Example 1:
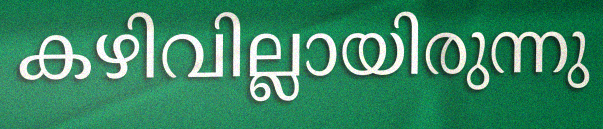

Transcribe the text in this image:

കഴിവില്ലായിരുന്നു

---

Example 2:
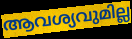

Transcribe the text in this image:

ആവശ്യവുമില്ല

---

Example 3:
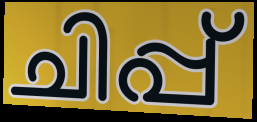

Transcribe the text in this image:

ചിപ്പ്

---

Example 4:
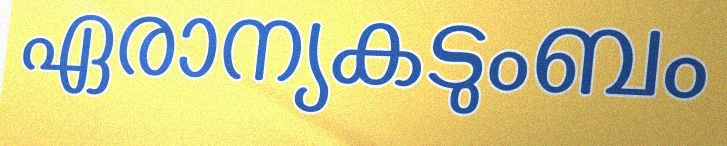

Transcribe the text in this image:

ഏരാന്യകടുംബം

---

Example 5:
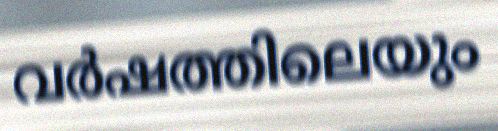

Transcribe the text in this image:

വർഷത്തിലെയും